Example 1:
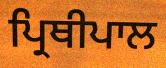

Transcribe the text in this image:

ਪ੍ਰਿਥੀਪਾਲ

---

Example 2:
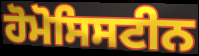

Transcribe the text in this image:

ਹੋਮੋਸਿਸਟੀਨ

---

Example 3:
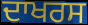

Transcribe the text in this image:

ਦਾਖਰਸ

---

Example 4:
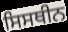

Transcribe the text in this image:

ਸਿਸਥੀਨ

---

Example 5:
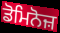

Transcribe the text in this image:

ਡੋਮਿਨੋਜ਼